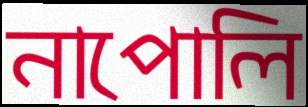
নাপোলি